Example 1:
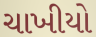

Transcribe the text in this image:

ચાખીયો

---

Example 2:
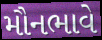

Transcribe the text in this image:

મૌનભાવે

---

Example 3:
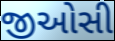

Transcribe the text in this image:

જીઓસી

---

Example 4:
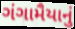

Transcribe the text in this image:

ગંગામૈયાનું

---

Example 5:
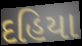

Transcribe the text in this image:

દહિયા